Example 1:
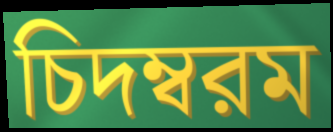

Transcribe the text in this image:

চিদম্বরম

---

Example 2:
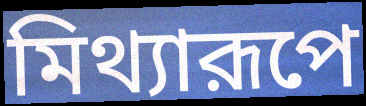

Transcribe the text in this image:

মিথ্যারূপে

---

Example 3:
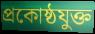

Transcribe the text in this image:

প্রকোষ্ঠযুক্ত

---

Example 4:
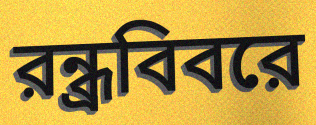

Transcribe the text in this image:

রন্ধ্রবিবরে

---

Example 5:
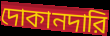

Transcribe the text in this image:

দোকানদারি